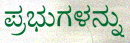
ಪ್ರಭುಗಳನ್ನು